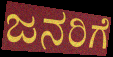
ಜನರಿಗೆ